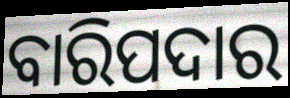
ବାରିପଦାର